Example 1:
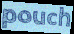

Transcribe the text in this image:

pouch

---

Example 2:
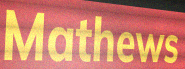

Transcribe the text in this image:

Mathews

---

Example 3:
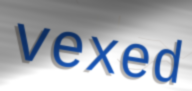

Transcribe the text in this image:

vexed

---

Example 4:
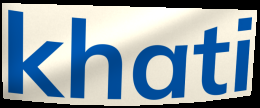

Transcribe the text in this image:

khati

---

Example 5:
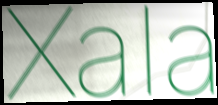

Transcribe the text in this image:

Xala